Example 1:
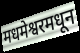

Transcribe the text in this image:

मधमेश्वरमधून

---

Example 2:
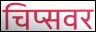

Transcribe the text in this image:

चिप्सवर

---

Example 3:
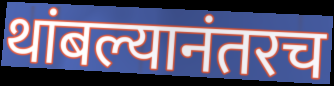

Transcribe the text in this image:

थांबल्यानंतरच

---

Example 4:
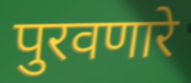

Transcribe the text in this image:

पुरवणारे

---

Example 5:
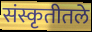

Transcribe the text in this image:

संस्कृतीतले